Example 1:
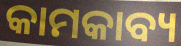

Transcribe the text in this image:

କାମକାବ୍ୟ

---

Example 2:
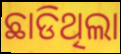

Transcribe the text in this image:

ଛାଡିଥିଲା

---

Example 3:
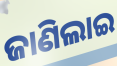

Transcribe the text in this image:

ଜାଣିଲାଇ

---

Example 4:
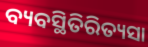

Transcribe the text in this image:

ବ୍ୟବସ୍ଥିତିରିତ୍ୟସା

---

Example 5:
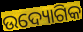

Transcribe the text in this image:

ଉଦ୍ୟୋଗିକ